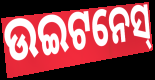
ଉଇଟନେସ୍